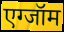
एग्जॉम